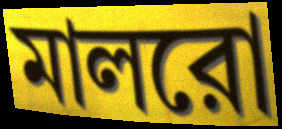
মালরো